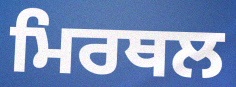
ਮਿਰਥਲ